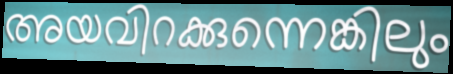
അയവിറക്കുന്നെങ്കിലും